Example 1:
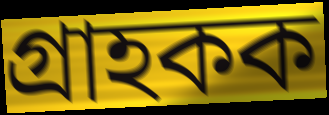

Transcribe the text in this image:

গ্ৰাহকক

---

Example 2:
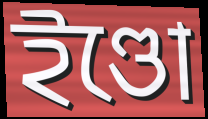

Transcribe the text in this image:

ইণ্ডো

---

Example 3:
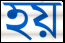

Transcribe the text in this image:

হয়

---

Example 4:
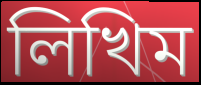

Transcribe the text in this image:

লিখিম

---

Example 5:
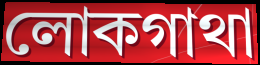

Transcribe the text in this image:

লোকগাথা